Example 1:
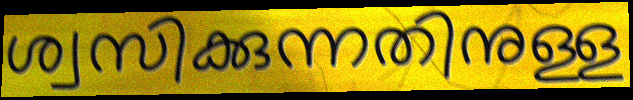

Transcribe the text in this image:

ശ്വസിക്കുന്നതിനുള്ള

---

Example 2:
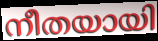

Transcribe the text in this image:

നീതയായി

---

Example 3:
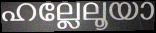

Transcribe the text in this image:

ഹല്ലേലൂയാ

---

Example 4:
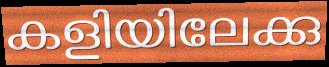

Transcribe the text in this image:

കളിയിലേക്കു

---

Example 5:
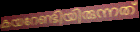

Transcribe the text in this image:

കയറേണ്ടിയിരുന്നത്